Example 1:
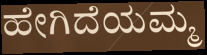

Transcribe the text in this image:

ಹೇಗಿದೆಯಮ್ಮ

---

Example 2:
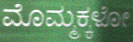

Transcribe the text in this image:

ಮೊಮ್ಮಕ್ಕಳೋ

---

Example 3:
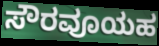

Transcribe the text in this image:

ಸೌರವೂಯಹ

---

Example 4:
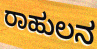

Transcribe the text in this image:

ರಾಹುಲನ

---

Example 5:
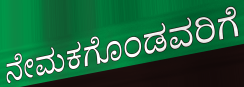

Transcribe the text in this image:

ನೇಮಕಗೊಂಡವರಿಗೆ